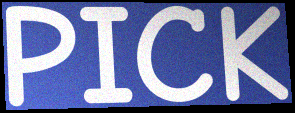
PICK